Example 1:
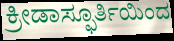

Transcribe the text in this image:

ಕ್ರೀಡಾಸ್ಫೂರ್ತಿಯಿಂದ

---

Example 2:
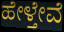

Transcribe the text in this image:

ಹೇಳ್ತೇವೆ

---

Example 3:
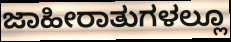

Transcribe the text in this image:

ಜಾಹೀರಾತುಗಳಲ್ಲೂ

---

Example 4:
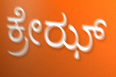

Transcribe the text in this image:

ಕ್ರೇಝ್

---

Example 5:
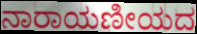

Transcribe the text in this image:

ನಾರಾಯಣೀಯದ